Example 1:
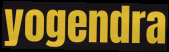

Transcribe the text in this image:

yogendra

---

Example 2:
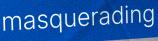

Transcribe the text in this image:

masquerading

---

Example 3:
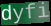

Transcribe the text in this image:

dyfi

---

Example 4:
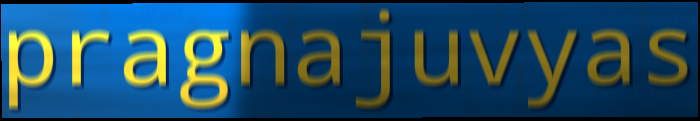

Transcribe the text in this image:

pragnajuvyas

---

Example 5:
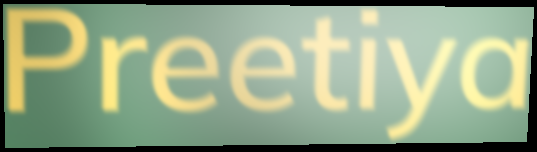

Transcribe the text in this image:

Preetiya